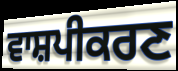
ਵਾਸ਼ਪੀਕਰਣ